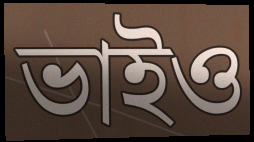
ভাইও